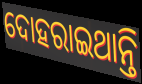
ଦୋହରାଇଥାନ୍ତି